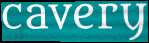
cavery